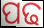
ପଢ